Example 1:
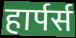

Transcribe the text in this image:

हार्पर्स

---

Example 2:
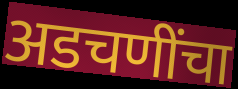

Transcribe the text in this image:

अडचणींचा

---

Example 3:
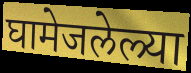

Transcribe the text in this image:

घामेजलेल्या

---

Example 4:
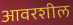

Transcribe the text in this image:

आवरशील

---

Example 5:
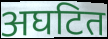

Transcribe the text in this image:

अघटित